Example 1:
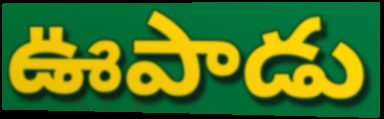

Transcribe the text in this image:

ఊపాడు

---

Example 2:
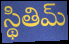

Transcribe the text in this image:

స్థితిమ్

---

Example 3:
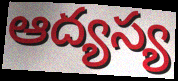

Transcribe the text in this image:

ఆద్యస్య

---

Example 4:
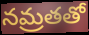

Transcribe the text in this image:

నమ్రతతో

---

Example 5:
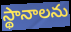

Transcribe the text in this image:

స్థానాలను